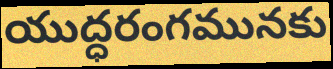
యుద్ధరంగమునకు